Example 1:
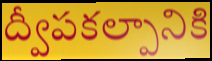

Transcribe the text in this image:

ద్వీపకల్పానికి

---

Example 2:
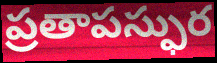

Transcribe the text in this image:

ప్రతాపస్ఫుర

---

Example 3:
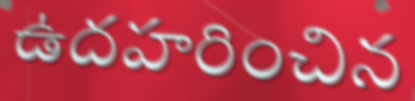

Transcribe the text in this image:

ఉదహరించిన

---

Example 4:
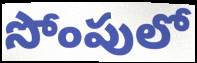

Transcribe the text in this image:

సోంపులో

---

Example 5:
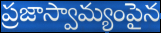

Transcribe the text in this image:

ప్రజాస్వామ్యంపైన